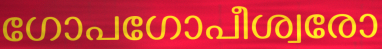
ഗോപഗോപീശ്വരോ